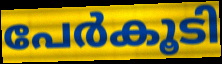
പേർകൂടി